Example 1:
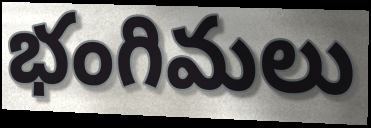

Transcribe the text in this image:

భంగిమలు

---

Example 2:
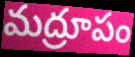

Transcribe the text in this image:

మద్రూపం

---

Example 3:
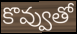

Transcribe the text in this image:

కొవ్వుతో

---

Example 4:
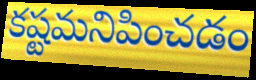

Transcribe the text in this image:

కష్టమనిపించడం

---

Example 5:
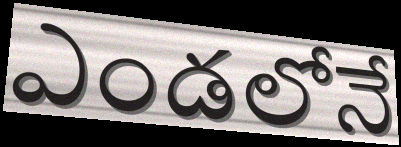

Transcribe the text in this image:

ఎండలోనే